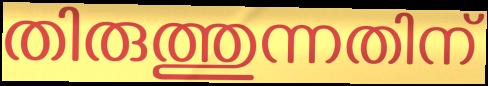
തിരുത്തുന്നതിന്